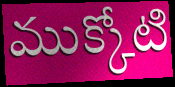
ముక్కోటి